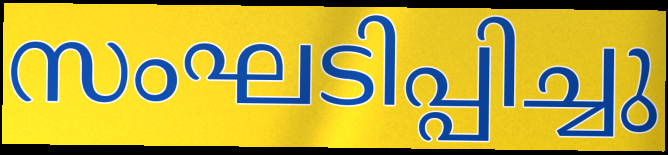
സംഘടിപ്പിച്ചു